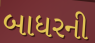
બાધરની